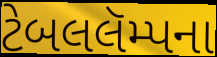
ટેબલલૅમ્પના